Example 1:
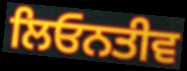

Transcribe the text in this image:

ਲਿਓਨਤੀਵ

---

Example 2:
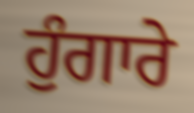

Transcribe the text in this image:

ਹੁੰਗਾਰੇ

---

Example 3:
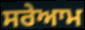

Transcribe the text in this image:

ਸਰੇਆਮ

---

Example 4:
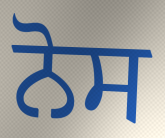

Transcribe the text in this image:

ਨੋਸ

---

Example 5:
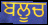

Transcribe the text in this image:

ਬਲੂਚ